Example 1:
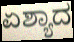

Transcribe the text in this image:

ಏಶ್ಯಾದ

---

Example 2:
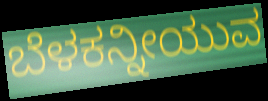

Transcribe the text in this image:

ಬೆಳಕನ್ನೀಯುವ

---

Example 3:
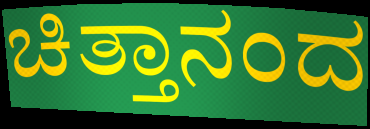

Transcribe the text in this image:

ಚಿತ್ತಾನಂದ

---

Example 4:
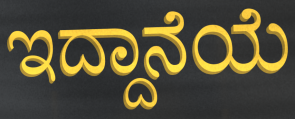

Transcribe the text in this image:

ಇದ್ದಾನೆಯೆ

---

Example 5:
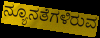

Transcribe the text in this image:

ನ್ಯೂನತೆಗಳಿರುವ